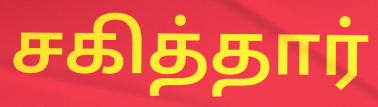
சகித்தார்